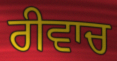
ਰੀਵਾਚ